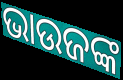
ଭାଉଜଙ୍କ